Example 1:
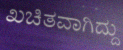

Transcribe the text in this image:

ಖಚಿತವಾಗಿದ್ದು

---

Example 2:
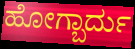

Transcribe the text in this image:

ಹೋಗ್ಬಾರ್ದು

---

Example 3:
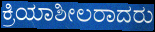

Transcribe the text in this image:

ಕ್ರಿಯಾಶೀಲರಾದರು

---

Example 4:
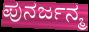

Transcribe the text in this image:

ಪುನರ್ಜನ್ಮ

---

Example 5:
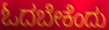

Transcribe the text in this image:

ಓದಬೇಕೆಂದು